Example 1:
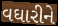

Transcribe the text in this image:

વઘારીને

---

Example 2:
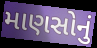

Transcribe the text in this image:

માણસોનું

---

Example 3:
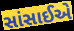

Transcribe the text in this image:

સાંસાઈએ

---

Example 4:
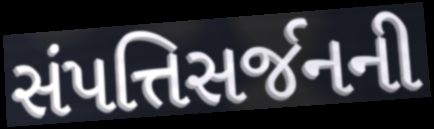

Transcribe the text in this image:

સંપત્તિસર્જનની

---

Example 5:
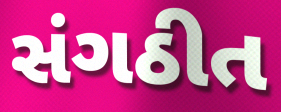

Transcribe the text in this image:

સંગઠીત